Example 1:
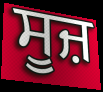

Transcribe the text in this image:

ਸੂਜ਼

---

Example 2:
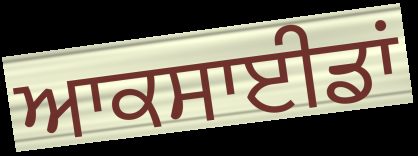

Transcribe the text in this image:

ਆਕਸਾਈਡਾਂ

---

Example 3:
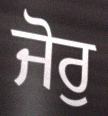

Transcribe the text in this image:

ਜੋਰੁ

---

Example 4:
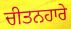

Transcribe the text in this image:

ਚੀਤਨਹਾਰੇ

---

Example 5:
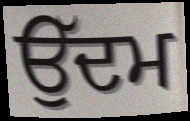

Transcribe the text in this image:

ਉੱਦਮ